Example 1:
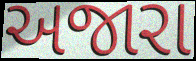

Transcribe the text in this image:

અજારા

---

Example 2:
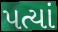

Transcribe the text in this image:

પત્યાં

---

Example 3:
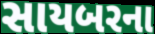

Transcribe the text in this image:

સાયબરના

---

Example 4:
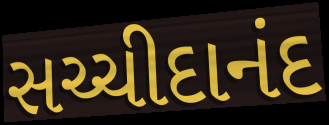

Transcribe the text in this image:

સચ્ચીદાનંદ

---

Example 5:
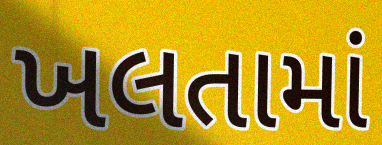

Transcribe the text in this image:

ખલતામાં